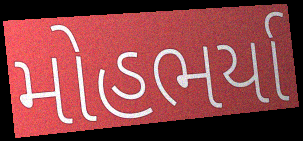
મોહભર્યા